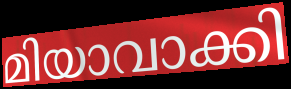
മിയാവാക്കി